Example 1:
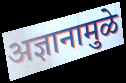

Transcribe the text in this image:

अज्ञानामुळे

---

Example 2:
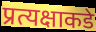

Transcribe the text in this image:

प्रत्यक्षाकडे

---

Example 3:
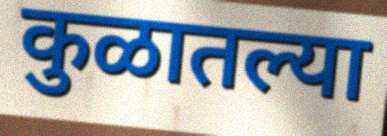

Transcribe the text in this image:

कुळातल्या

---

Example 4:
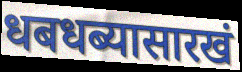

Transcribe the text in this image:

धबधब्यासारखं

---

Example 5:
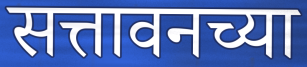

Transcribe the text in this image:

सत्तावनच्या